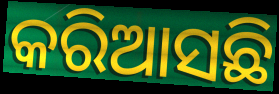
କରିଆସଛି